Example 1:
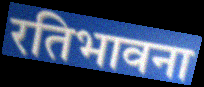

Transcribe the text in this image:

रतिभावना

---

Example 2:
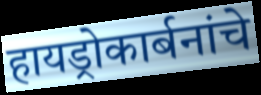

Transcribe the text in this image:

हायड्रोकार्बनांचे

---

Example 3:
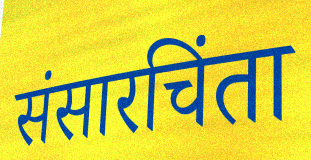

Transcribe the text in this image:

संसारचिंता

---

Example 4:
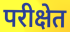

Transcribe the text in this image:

परीक्षेत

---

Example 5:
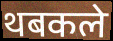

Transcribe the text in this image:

थबकले